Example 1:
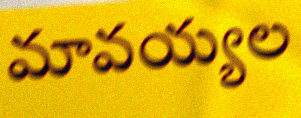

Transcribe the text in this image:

మావయ్యల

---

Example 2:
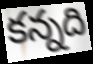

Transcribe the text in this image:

కన్నది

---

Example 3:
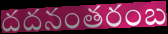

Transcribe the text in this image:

దదనంతరంబ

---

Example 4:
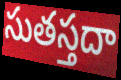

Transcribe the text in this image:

సుతస్తదా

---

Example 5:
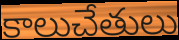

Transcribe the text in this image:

కాలుచేతులు